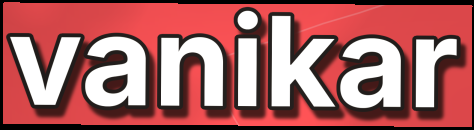
vanikar